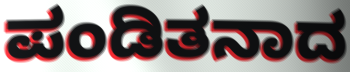
ಪಂಡಿತನಾದ